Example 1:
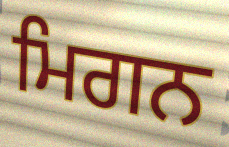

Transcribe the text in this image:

ਮਿਗਨ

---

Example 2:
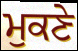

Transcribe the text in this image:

ਮੁਕਣੇ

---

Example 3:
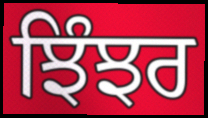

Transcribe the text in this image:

ਝਿੰਝਰ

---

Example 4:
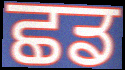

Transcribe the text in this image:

ਛਡ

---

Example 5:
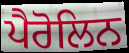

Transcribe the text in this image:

ਪੈਰੋਲਿਨ